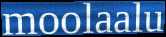
moolaalu